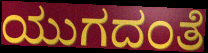
ಯುಗದಂತೆ